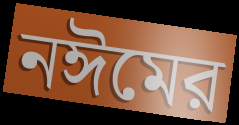
নঈমের